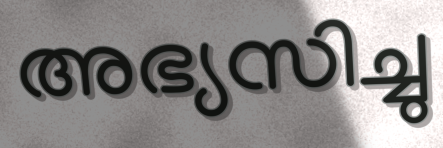
അഭ്യസിച്ചു